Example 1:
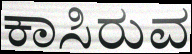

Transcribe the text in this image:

ಕಾಸಿರುವ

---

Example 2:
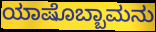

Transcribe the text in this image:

ಯಾಷೊಬ್ಬಾಮನು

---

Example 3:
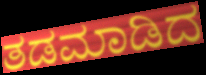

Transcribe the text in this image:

ತಡಮಾಡಿದ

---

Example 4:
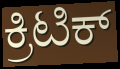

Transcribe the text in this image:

ಕ್ರಿಟಿಕ್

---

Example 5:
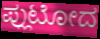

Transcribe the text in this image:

ಪ್ಲುಟೋದ